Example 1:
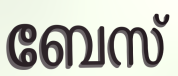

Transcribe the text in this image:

ബേസ്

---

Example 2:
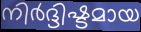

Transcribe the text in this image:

നിർദ്ദിഷ്ടമായ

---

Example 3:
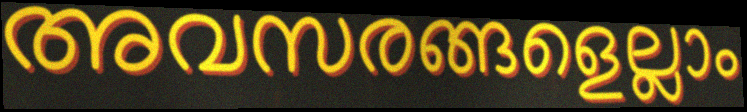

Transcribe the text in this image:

അവസരങ്ങളെല്ലാം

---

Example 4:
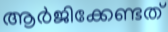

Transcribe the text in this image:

ആർജിക്കേണ്ടത്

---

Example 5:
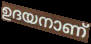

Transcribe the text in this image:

ഉദയനാണ്